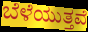
ಬೆಳೆಯುತ್ತವೆ